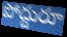
పోద్దురూ